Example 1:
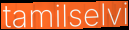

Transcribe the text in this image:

tamilselvi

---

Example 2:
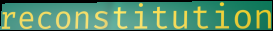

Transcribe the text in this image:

reconstitution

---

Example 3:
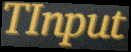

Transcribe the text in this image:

TInput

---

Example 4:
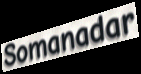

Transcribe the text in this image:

Somanadar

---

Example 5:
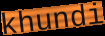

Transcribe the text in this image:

khundi